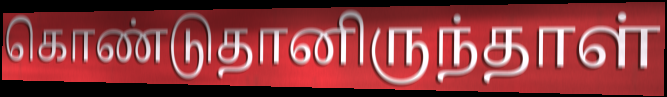
கொண்டுதானிருந்தாள்